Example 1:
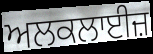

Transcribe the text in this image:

ਅਲਕਲਾਈਜ਼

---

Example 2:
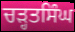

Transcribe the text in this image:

ਚੜ੍ਹਤਸਿੰਘ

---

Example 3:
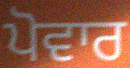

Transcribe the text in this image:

ਪੋਵਾਰ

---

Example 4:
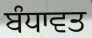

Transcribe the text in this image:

ਬੰਧਾਵਤ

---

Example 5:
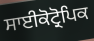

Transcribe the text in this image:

ਸਾਈਕੋਟ੍ਰੋਪਿਕ